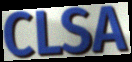
CLSA